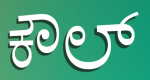
ಕೌಲ್